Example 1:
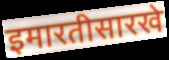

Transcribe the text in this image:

इमारतीसारखे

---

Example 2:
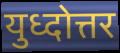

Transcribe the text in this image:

युध्दोत्तर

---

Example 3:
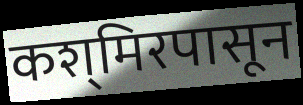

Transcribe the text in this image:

कश्मिरपासून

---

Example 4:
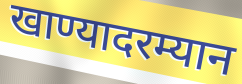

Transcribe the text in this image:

खाण्यादरम्यान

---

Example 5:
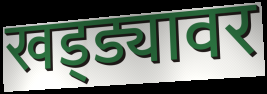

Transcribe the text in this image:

खड्ड्यावर